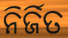
ନିର୍ଜିତ